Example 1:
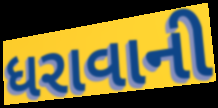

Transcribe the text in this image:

ધરાવાની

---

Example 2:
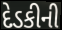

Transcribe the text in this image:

દેડકીની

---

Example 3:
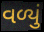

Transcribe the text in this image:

વળ્યું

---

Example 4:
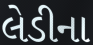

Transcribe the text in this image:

લેડીના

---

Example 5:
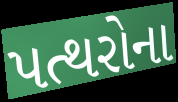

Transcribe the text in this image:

પત્થરોના